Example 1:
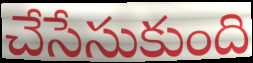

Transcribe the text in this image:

చేసేసుకుంది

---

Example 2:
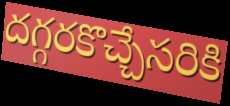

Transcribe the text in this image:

దగ్గరకొచ్చేసరికి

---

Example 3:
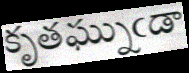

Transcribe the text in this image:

కృతఘ్నుఁడా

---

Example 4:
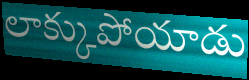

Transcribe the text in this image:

లాక్కుపోయాడు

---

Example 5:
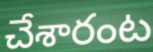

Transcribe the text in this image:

చేశారంట